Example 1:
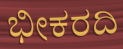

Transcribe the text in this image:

ಭೀಕರದಿ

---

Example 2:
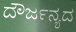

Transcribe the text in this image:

ದೌರ್ಜನ್ಯದ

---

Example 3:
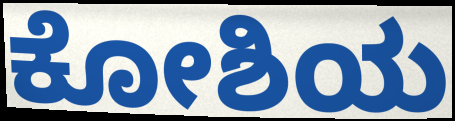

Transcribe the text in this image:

ಕೋಶಿಯ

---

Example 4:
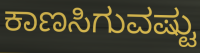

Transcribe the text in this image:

ಕಾಣಸಿಗುವಷ್ಟು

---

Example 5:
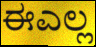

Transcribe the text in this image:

ಈಎಲ್ಲ